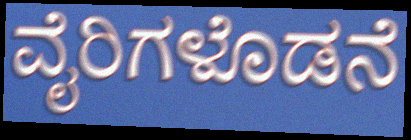
ವೈರಿಗಳೊಡನೆ